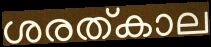
ശരത്കാല